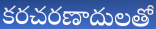
కరచరణాదులతో